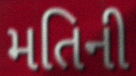
મતિની